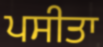
ਪਸੀਤਾ